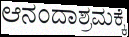
ಆನಂದಾಶ್ರಮಕ್ಕೆ